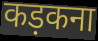
कड़कना